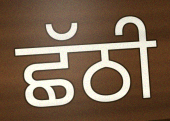
ਛੱਠੀ